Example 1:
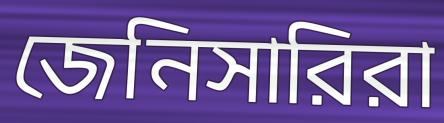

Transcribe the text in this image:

জেনিসারিরা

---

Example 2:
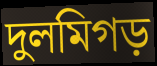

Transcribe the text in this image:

দুলমিগড়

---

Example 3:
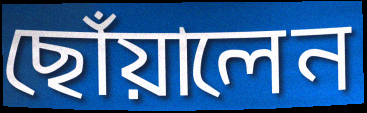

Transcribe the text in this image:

ছোঁয়ালেন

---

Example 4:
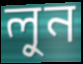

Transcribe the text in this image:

লুন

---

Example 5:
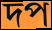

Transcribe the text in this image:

দপ